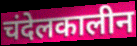
चंदेलकालीन